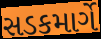
સડકમાર્ગે